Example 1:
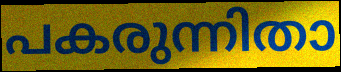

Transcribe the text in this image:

പകരുന്നിതാ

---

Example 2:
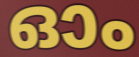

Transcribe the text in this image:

ഓം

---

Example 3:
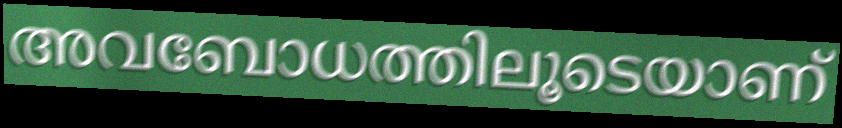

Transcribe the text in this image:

അവബോധത്തിലൂടെയാണ്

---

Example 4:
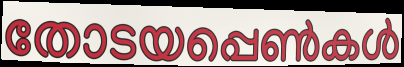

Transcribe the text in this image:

തോടയപ്പെൺകൾ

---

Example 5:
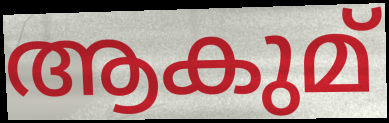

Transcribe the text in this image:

ആകുമ്